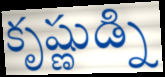
కృష్ణుడ్ని